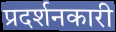
प्रदर्शनकारी